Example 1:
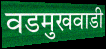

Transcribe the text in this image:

वडमुखवाडी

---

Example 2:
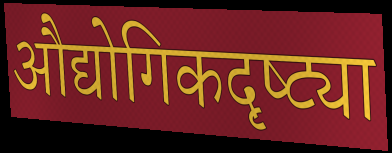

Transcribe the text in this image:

औद्योगिकदृष्ट्या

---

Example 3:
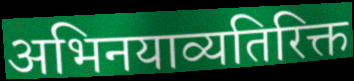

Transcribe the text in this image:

अभिनयाव्यतिरिक्त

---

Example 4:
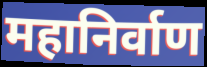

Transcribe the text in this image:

महानिर्वाण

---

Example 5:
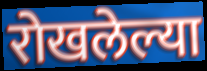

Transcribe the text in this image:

रोखलेल्या